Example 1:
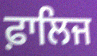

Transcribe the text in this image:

ਫ਼ਾਲਿਜ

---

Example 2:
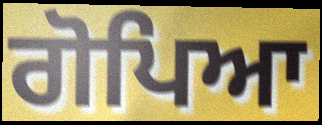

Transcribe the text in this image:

ਗੋਪਿਆ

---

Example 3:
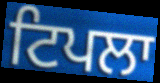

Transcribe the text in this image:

ਟਿਪਲਾ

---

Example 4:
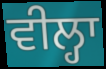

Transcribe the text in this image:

ਵੀਲ੍ਹਾ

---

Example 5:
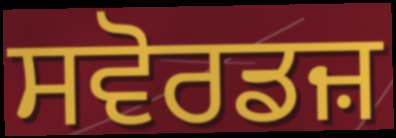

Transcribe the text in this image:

ਸਵੋਰਡਜ਼